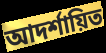
আদর্শায়িত